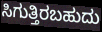
ಸಿಗುತ್ತಿರಬಹುದು